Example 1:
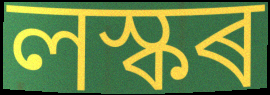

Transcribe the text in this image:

লস্কৰ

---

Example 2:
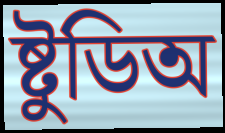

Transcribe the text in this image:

ষ্টুডিঅ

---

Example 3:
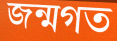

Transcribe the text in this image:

জন্মগত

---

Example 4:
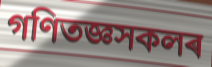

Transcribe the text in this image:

গণিতজ্ঞসকলৰ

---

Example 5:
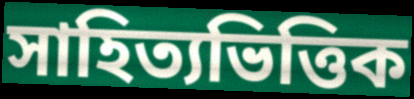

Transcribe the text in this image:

সাহিত্যভিত্তিক